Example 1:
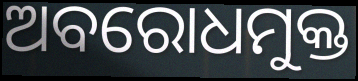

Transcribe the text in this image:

ଅବରୋଧମୁକ୍ତ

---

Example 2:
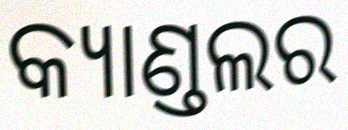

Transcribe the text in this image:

କ୍ୟାଣ୍ଡଲର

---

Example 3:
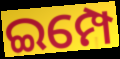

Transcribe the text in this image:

ଇମ୍ପେ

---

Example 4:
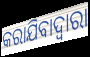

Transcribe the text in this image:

କରାଯିବାଦ୍ୱାରା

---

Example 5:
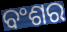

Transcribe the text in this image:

ବଂଶର